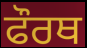
ਫੌਰਥ